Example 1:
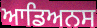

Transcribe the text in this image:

ਆਡਿਅਨਸ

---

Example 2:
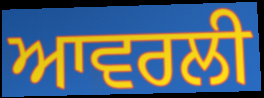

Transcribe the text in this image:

ਆਵਰਲੀ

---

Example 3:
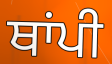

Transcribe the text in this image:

ਥਾਂਪੀ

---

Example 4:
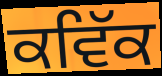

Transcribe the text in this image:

ਕਵਿੱਕ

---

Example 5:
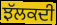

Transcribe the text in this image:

ਝੱਲਕਦੀ